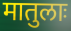
मातुलाः